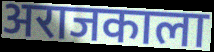
अराजकाला